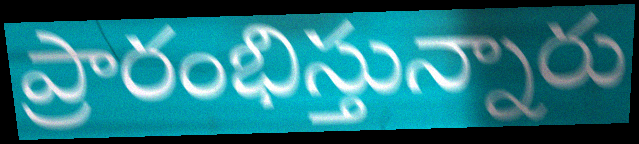
ప్రారంభిస్తున్నారు